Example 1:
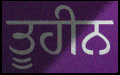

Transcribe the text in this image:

ਤੂਹੀਨ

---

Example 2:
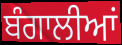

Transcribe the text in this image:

ਬੰਗਾਲੀਆਂ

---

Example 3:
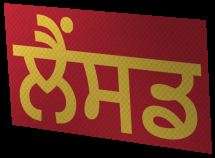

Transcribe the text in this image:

ਲੈਂਸਡ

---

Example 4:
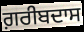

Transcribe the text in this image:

ਗ਼ਰੀਬਦਾਸ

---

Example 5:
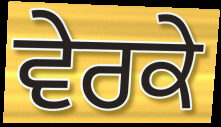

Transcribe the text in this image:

ਵੇਰਕੇ